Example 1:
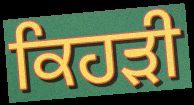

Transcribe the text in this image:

ਕਿਹੜੀ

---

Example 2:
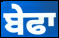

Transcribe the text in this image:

ਬੇਫਾ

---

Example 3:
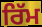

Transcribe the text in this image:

ਰਿੱਮ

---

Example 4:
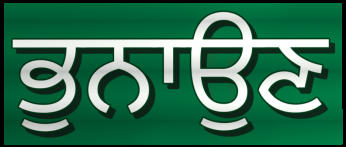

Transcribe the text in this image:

ਭੁਨਾਉਣ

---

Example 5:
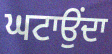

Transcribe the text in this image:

ਘਟਾਉਂਦਾ